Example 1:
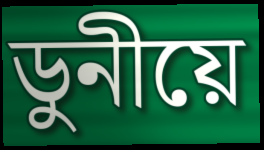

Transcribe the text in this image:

ডুনীয়ে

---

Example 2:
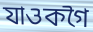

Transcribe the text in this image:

যাওকগৈ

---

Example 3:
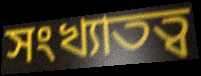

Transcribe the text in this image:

সংখ্যাতত্ব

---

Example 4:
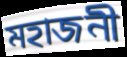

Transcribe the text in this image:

মহাজনী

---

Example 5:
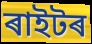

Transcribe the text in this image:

ৰাইটৰ